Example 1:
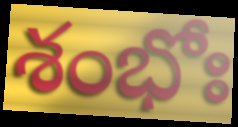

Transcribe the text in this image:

శంభోః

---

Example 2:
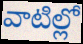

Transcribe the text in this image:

వాటిల్లో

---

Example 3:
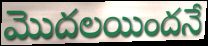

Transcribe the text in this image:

మొదలయిందనే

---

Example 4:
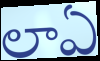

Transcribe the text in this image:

లాఏ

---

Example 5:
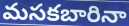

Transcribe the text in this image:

మసకబారినా